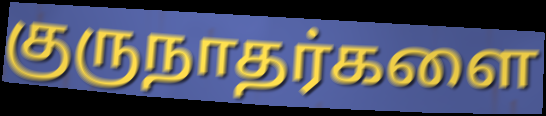
குருநாதர்களை